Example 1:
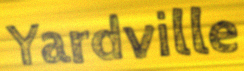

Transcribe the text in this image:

Yardville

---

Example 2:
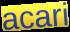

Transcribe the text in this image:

acari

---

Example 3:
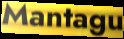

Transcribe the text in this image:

Mantagu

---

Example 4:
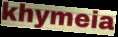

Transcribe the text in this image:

khymeia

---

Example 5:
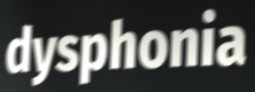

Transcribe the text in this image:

dysphonia